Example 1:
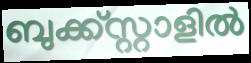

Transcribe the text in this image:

ബുക്ക്സ്റ്റാളിൽ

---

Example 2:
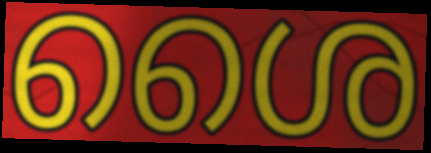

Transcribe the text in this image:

ശൈ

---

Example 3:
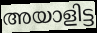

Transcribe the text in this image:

അയാളിട്ട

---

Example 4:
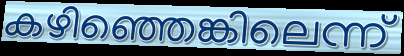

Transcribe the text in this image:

കഴിഞ്ഞെങ്കിലെന്ന്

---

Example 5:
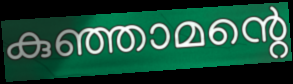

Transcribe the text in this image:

കുഞ്ഞാമന്റെ